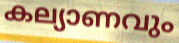
കല്യാണവും